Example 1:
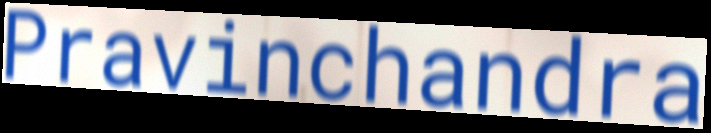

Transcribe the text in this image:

Pravinchandra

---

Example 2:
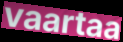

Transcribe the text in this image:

vaartaa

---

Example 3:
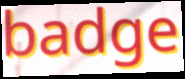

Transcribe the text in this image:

badge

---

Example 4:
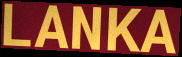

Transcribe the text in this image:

LANKA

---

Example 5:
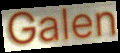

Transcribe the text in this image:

Galen